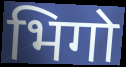
भिगो